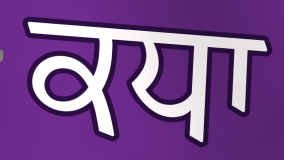
ਕਧਾ